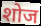
शोज